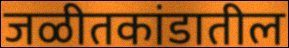
जळीतकांडातील